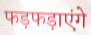
फड़फड़ाएंगे